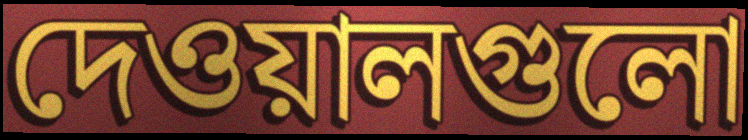
দেওয়ালগুলো